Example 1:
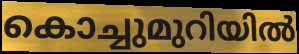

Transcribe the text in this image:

കൊച്ചുമുറിയിൽ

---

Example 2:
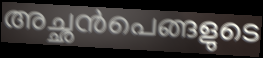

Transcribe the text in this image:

അച്ഛൻപെങ്ങളുടെ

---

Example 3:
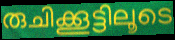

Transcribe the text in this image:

രുചിക്കൂട്ടിലൂടെ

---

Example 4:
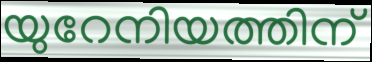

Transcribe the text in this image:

യുറേനിയത്തിന്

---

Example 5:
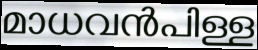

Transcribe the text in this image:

മാധവൻപിള്ള